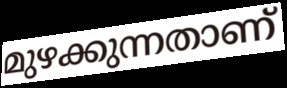
മുഴക്കുന്നതാണ്